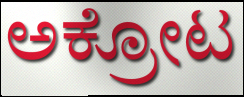
ಅಕ್ರೋಟ